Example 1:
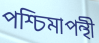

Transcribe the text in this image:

পশ্চিমাপন্থী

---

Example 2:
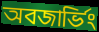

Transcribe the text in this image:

অবজার্ভিং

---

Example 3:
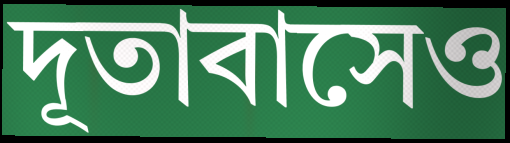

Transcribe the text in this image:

দূতাবাসেও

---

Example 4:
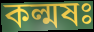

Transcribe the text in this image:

কল্মষঃ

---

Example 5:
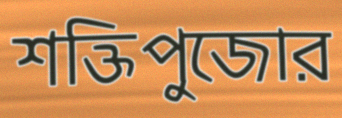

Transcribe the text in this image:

শক্তিপুজোর